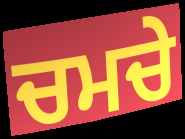
ਚਮਚੇ